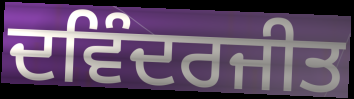
ਦਵਿੰਦਰਜੀਤ